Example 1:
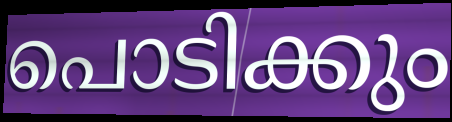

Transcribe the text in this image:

പൊടിക്കും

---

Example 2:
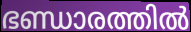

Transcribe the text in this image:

ഭണ്ഡാരത്തിൽ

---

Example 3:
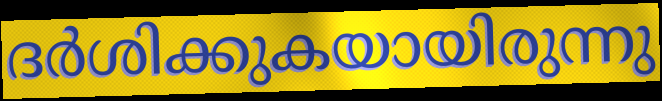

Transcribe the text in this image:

ദർശിക്കുകയായിരുന്നു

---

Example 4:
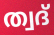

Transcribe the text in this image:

ത്വദ്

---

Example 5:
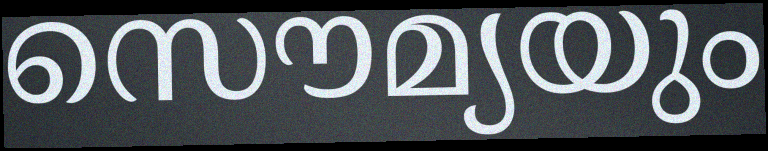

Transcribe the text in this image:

സൌമ്യയും